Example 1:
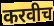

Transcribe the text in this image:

करवीच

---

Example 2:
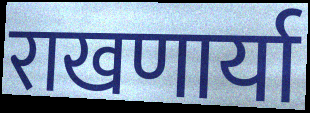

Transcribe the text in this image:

राखणार्या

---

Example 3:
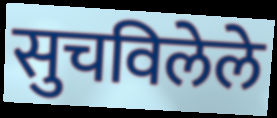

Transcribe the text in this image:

सुचविलेले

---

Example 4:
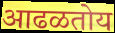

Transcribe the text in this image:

आढळतोय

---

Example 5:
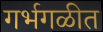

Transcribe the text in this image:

गर्भगळीत